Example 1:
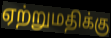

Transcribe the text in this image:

ஏற்றுமதிக்கு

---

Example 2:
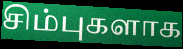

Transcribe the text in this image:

சிம்புகளாக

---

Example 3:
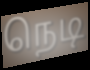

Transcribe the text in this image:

நெடி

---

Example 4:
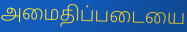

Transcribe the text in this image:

அமைதிப்படையை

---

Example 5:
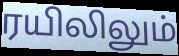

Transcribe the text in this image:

ரயிலிலும்